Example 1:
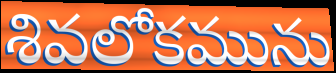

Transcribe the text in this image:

శివలోకమును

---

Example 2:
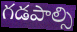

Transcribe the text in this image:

గడపాల్సి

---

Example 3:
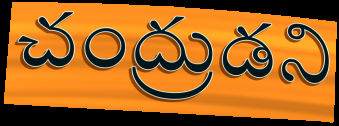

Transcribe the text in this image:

చంద్రుడని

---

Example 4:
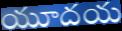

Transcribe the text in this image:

యూదయ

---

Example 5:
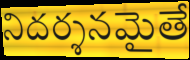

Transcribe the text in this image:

నిదర్శనమైతే